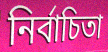
নির্বাচিতা